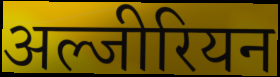
अल्जीरियन